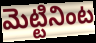
మెట్టినింట